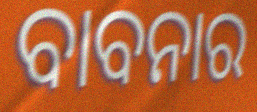
ବାବନାର